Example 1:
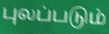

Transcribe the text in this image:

புலப்படும்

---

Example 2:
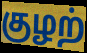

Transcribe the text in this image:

குழற்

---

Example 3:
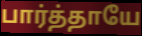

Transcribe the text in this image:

பார்த்தாயே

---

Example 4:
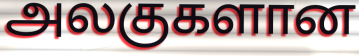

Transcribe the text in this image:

அலகுகளான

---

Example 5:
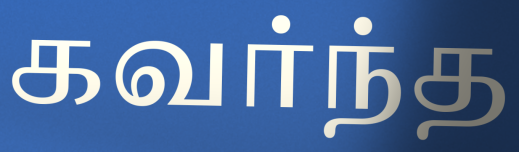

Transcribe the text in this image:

கவர்ந்த